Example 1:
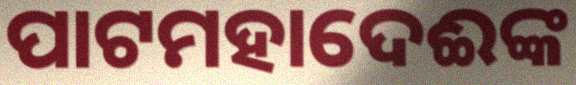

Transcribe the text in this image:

ପାଟମହାଦେଈଙ୍କ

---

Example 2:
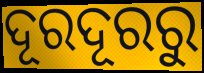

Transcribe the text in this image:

ଦୂରଦୂରରୁ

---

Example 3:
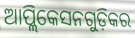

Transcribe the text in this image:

ଆପ୍ଲିକେସନଗୁଡ଼ିକର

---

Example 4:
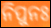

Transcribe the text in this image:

ନିପୁନଃ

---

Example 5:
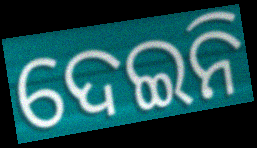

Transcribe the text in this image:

ଦେଇନି